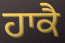
ਹਾਕੈ